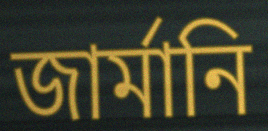
জার্মানি